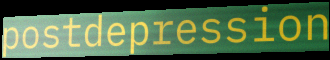
postdepression